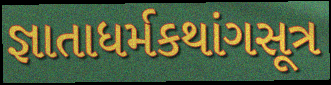
જ્ઞાતાધર્મકથાંગસૂત્ર